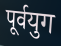
पूर्वयुग